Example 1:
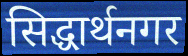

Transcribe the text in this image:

सिद्धार्थनगर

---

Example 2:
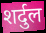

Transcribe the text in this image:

शर्दुल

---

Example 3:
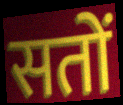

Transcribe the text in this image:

सतों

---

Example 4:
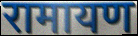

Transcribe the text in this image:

रामायण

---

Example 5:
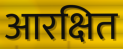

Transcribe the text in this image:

आरक्षित